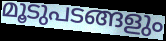
മൂടുപടങ്ങളും